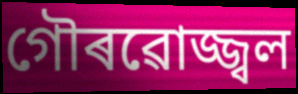
গৌৰৱোজ্জ্বল